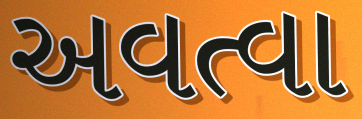
અવત્વા